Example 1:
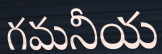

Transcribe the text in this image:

గమనీయ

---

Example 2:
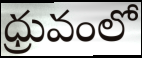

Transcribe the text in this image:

ధ్రువంలో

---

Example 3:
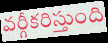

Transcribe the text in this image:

వర్గీకరిస్తుంది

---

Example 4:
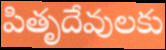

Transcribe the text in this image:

పితృదేవులకు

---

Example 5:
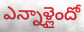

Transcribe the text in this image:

ఎన్నాళ్లైందో